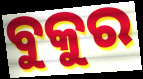
ବୁକୁର